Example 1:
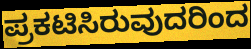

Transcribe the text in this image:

ಪ್ರಕಟಿಸಿರುವುದರಿಂದ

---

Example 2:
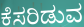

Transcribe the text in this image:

ಕೆಸರಿಡುವ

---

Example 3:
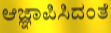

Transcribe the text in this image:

ಆಜ್ಞಾಪಿಸಿದಂತೆ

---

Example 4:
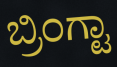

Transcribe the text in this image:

ಬ್ರಿಂಗ್ಟಾ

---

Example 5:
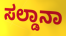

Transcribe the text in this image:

ಸಲ್ಡಾನಾ